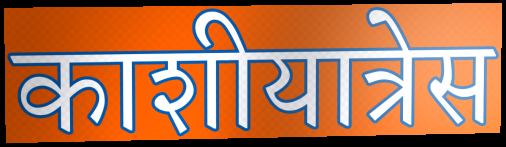
काशीयात्रेस